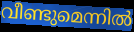
വീണ്ടുമെന്നിൽ